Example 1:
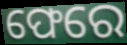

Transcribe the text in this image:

ଫେରେ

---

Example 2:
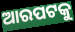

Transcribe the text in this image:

ଆରପଟକୁ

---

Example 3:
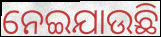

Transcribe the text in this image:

ନେଇଯାଉଛି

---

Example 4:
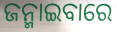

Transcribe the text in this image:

ଜନ୍ମାଇବାରେ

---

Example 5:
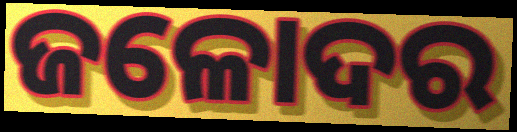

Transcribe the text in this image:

ଜଳୋଦର